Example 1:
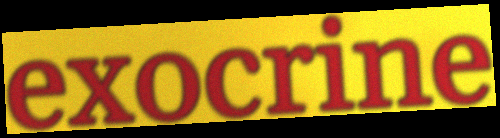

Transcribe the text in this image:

exocrine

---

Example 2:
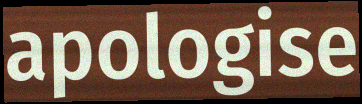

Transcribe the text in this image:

apologise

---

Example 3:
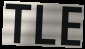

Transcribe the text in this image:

TLE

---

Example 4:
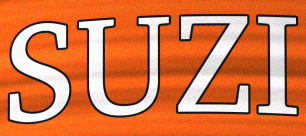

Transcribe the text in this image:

SUZI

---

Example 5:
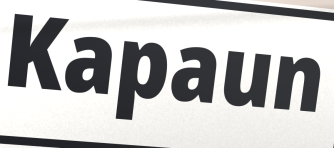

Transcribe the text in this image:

Kapaun